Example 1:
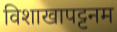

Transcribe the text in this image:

विशाखापट्टनम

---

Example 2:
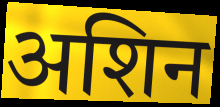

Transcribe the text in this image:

अशिन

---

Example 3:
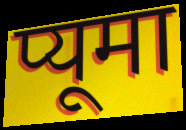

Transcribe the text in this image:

प्यूमा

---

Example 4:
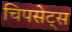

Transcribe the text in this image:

चिपसेट्स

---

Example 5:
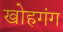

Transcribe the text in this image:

खोहगंग